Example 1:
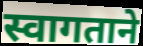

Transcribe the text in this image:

स्वागताने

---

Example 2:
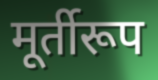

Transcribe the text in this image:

मूर्तीरूप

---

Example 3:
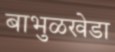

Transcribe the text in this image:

बाभुळखेडा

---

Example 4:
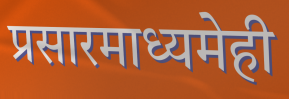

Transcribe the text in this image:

प्रसारमाध्यमेही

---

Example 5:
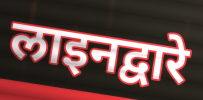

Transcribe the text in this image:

लाइनद्वारे